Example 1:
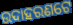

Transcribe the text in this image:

ଉଦାହରଣଟେ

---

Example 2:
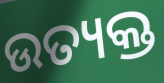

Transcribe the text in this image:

ଉତ୍ୟକ୍ତ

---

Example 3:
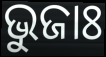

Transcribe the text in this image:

ଭୁଜାଃ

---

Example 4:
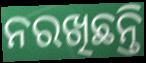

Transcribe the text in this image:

ନରଖିଛନ୍ତି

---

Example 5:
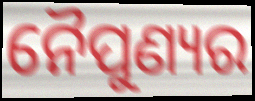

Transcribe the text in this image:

ନୈପୁଣ୍ୟର